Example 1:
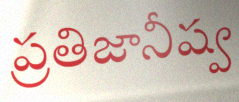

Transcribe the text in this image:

ప్రతిజానీష్వ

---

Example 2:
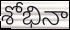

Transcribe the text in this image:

శోభినా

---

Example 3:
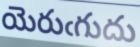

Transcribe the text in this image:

యెరుఁగుదు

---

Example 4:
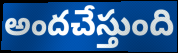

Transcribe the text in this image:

అందచేస్తుంది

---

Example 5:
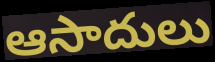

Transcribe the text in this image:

ఆసాదులు